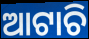
ଆଟାଚି